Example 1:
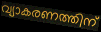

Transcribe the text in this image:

വ്യാകരണത്തിന്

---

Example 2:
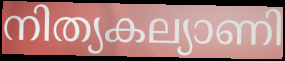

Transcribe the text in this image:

നിത്യകല്യാണി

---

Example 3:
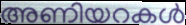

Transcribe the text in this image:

അണിയറകൾ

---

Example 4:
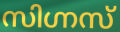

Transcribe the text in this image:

സിഗ്നസ്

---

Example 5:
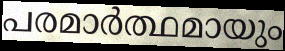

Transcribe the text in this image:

പരമാർത്ഥമായും